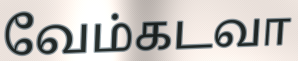
வேம்கடவா